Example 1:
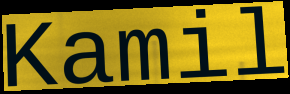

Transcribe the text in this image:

Kamil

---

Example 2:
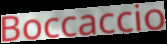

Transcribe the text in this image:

Boccaccio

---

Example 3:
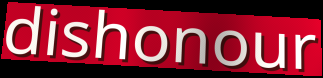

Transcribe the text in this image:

dishonour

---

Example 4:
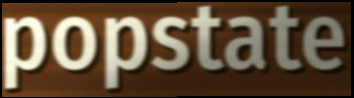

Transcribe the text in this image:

popstate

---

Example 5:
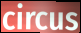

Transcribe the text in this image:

circus